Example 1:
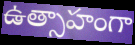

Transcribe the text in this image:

ఉత్సాహంగా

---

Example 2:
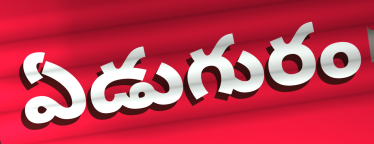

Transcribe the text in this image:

ఏడుగురం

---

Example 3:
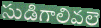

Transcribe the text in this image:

సుడిగాలివలె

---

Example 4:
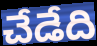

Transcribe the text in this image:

చేడేది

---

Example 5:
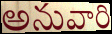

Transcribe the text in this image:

అనువారి